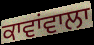
ਕਾਵਾਂਵਾਲਾ